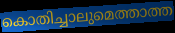
കൊതിച്ചാലുമെത്താത്ത